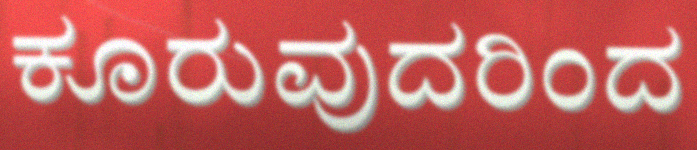
ಕೂರುವುದರಿಂದ